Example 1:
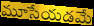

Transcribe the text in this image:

మూసేయడమే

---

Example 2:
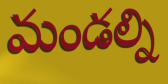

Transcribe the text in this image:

మండల్ని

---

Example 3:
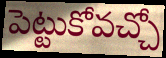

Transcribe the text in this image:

పెట్టుకోవచ్చో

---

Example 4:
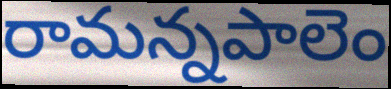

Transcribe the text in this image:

రామన్నపాలెం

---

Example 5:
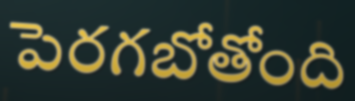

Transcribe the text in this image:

పెరగబోతోంది